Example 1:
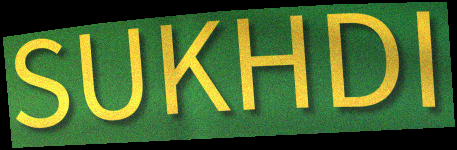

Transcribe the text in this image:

SUKHDI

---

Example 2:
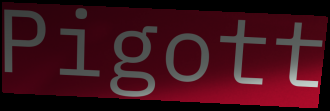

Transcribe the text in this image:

Pigott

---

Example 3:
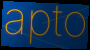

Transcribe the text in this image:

apto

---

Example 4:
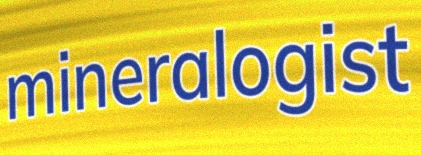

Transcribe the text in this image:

mineralogist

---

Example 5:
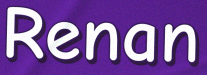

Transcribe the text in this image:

Renan